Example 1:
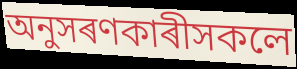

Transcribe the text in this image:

অনুসৰণকাৰীসকলে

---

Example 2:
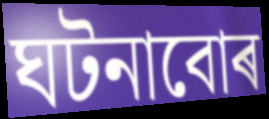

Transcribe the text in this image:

ঘটনাবোৰ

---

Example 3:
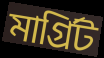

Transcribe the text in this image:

মাৰ্গ্ৰিট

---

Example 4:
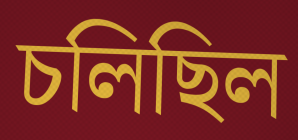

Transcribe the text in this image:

চলিছিল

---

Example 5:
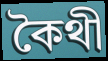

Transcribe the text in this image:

কৈথী